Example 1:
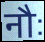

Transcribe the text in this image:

नौः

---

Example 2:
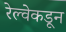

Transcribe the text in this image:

रेल्वेकडून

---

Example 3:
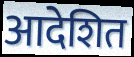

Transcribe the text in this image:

आदेशित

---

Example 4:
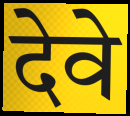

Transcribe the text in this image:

देवे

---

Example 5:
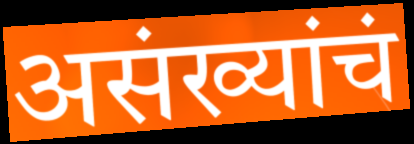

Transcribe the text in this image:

असंख्यांचं